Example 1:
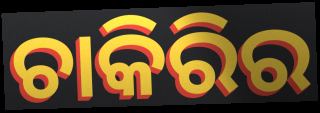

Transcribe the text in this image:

ଚାକିରିର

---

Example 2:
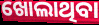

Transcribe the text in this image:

ଖୋଲାଥିବା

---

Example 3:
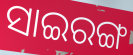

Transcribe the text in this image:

ସାଇରଙ୍ଗ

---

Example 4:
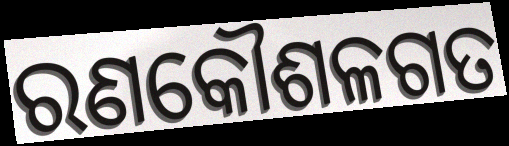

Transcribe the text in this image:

ରଣକୌଶଳଗତ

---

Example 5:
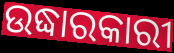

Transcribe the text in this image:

ଉଦ୍ଧାରକାରୀ